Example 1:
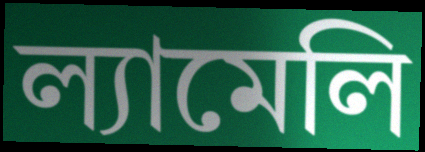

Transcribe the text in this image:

ল্যামেলি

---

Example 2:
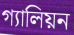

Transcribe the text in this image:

গ্যালিয়ন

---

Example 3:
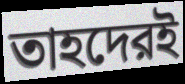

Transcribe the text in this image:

তাহদেরই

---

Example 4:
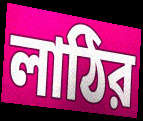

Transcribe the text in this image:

লাঠির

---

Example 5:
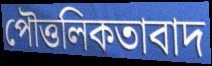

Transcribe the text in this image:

পৌত্তলিকতাবাদ